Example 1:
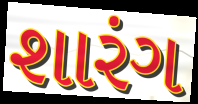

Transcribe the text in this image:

શારંગ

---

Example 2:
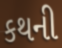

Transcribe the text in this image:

કથની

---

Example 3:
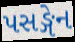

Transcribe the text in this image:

પસઙ્ગેન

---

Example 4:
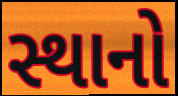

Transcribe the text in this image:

સ્થાનો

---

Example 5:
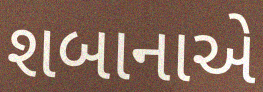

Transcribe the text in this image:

શબાનાએ